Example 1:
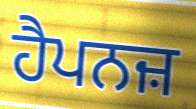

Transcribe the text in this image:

ਹੈਪਨਜ਼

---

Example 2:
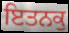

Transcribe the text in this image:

ਇਤਨਕੁ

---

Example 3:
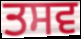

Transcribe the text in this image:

ਤਸਵ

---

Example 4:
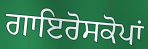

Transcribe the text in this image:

ਗਾਇਰੋਸਕੋਪਾਂ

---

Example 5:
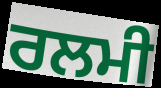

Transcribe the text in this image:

ਰਲਮੀ